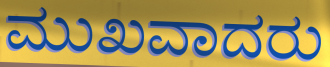
ಮುಖವಾದರು